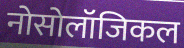
नोसोलॉजिकल